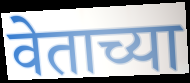
वेताच्या